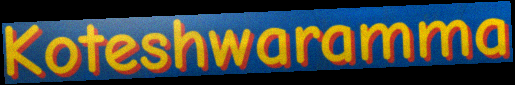
Koteshwaramma